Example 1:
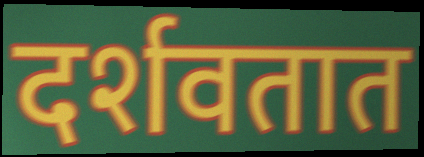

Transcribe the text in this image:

दर्शवतात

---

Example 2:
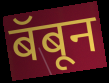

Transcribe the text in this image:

बॅबून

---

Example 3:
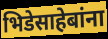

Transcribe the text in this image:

भिडेसाहेबांना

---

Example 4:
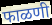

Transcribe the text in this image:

फाळणी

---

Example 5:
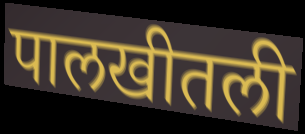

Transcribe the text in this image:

पालखीतली